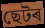
ছেটৰ